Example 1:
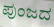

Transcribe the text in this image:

ಪುಂಜದ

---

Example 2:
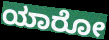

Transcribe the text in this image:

ಯಾರೋ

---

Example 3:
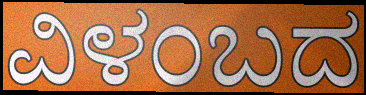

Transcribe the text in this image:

ವಿಳಂಬದ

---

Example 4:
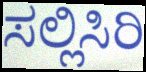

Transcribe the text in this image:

ಸಲ್ಲಿಸಿರಿ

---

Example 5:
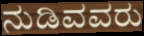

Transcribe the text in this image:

ನುಡಿವವರು